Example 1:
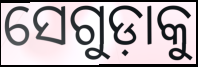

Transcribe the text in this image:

ସେଗୁଡ଼ାକୁ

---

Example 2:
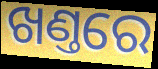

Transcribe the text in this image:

ଖଣ୍ତରେ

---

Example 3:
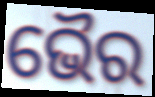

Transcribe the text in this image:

ଭୈର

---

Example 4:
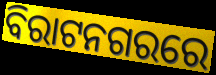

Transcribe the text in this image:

ବିରାଟନଗରରେ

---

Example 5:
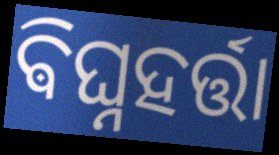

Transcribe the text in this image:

ଵିଘ୍ନହର୍ତ୍ତା